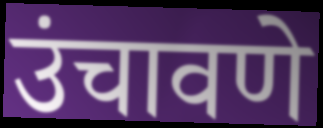
उंचावणे